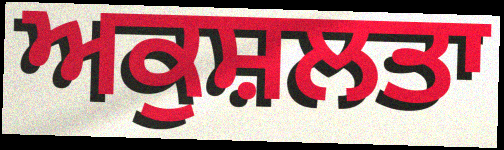
ਅਕੁਸ਼ਲਤਾ